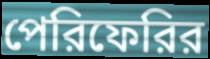
পেরিফেরির